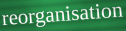
reorganisation